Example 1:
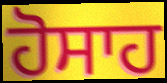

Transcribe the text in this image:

ਹੋਸਾਹ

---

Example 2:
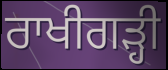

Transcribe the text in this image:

ਰਾਖੀਗੜ੍ਹੀ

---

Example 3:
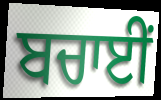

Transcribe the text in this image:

ਬਚਾਈਂ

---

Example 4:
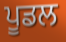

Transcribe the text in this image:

ਪੂਡਲ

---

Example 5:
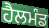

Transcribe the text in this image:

ਹੈਲਮੰਡ